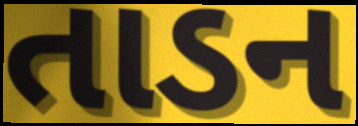
તાડન